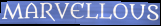
MARVELLOUS